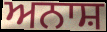
ਅਨਾਸ਼